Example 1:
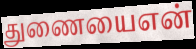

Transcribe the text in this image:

துணையைஎன்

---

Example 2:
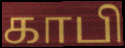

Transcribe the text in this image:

காபி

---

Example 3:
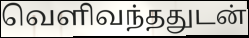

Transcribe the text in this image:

வெளிவந்ததுடன்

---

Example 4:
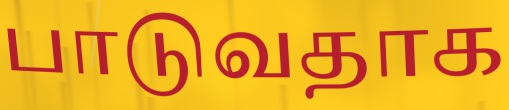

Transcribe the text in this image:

பாடுவதாக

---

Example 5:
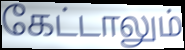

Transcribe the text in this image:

கேட்டாலும்